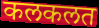
कलकलत